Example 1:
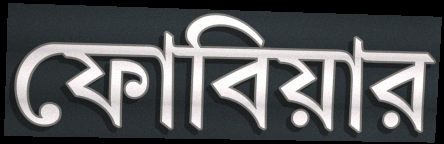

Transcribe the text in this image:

ফোবিয়ার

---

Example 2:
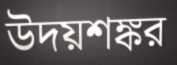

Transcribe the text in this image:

উদয়শঙ্কর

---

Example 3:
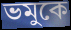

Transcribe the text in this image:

ভমুকে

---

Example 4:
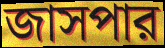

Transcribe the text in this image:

জাসপার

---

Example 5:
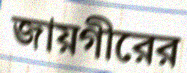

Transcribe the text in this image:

জায়গীরের